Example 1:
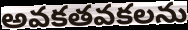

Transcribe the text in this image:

అవకతవకలను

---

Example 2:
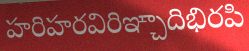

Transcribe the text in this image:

హరిహరవిరిఞ్చాదిభిరపి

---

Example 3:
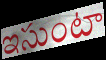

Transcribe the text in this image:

ఇసుంటా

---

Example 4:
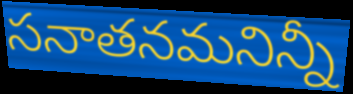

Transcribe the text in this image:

సనాతనమనిన్నీ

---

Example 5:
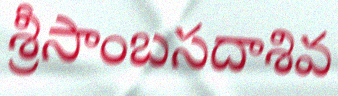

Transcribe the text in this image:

శ్రీసాంబసదాశివ